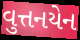
વુત્તનયેન